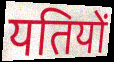
यतियों